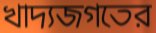
খাদ্যজগতের